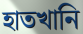
হাতখানি